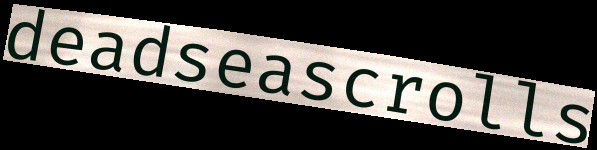
deadseascrolls